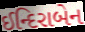
ઈન્દિરાબેન